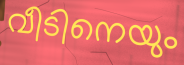
വീടിനെയും